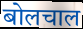
बोलचाल